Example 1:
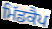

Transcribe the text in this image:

ਮਿੱਡਕੈਪ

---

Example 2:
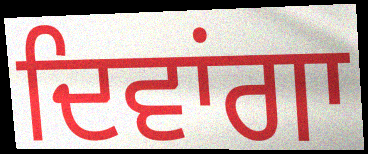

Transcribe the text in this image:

ਦਿਵਾਂਗਾ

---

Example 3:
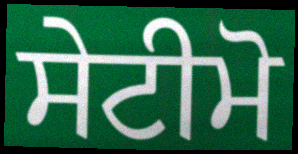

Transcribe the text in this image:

ਸੇਟੀਮੋ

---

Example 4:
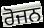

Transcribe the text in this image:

ਰੋਜਨ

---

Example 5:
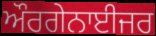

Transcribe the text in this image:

ਔਰਗੇਨਾਈਜਰ